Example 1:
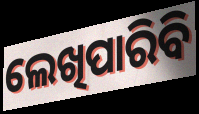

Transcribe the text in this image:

ଲେଖିପାରିବି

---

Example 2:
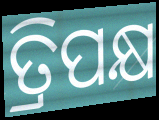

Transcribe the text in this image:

ତ୍ରିପକ୍ଷ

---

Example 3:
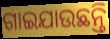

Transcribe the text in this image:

ଗାଇଯାଉଛନ୍ତି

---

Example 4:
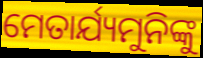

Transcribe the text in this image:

ମେତାର୍ଯ୍ୟମୁନିଙ୍କୁ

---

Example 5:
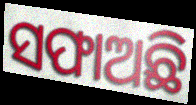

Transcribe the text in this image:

ସଫାଅଛି